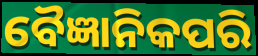
ବୈଜ୍ଞାନିକପରି